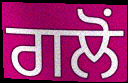
ਗਲੋਂ